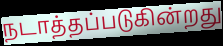
நடாத்தப்படுகின்றது